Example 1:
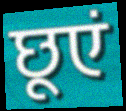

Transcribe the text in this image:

छूएं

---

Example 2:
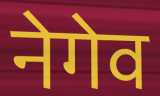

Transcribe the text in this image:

नेगेव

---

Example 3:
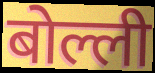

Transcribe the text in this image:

बोल्ली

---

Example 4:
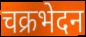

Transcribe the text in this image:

चक्रभेदन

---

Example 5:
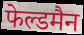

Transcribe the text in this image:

फेल्डमैन